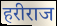
हरीराज